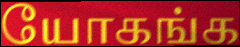
யோகங்க